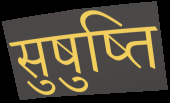
सुषुष्ति